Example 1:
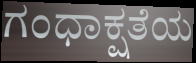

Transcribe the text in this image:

ಗಂಧಾಕ್ಷತೆಯ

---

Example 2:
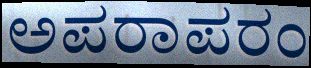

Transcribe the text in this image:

ಅಪರಾಪರಂ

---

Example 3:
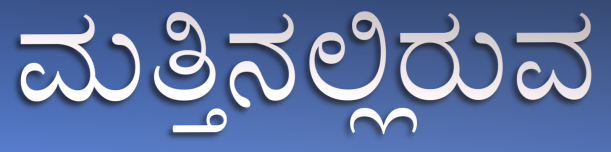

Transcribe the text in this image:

ಮತ್ತಿನಲ್ಲಿರುವ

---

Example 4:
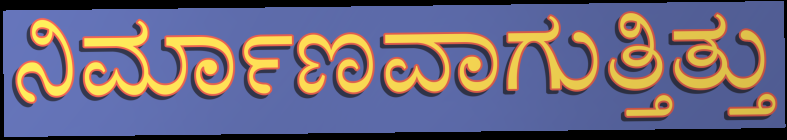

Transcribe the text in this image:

ನಿರ್ಮಾಣವಾಗುತ್ತಿತ್ತು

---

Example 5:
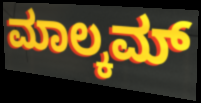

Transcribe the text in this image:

ಮಾಲ್ಕಮ್